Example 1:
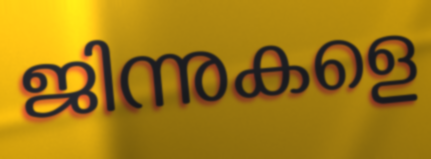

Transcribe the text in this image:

ജിന്നുകളെ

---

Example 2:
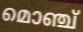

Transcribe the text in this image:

മൊഞ്ച്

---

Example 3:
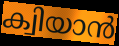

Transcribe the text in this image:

ക്വിയാൻ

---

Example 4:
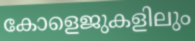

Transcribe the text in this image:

കോളെജുകളിലും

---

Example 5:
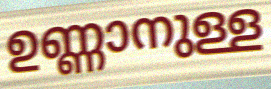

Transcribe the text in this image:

ഉണ്ണാനുള്ള